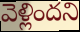
వెళ్లిందని